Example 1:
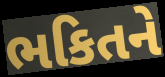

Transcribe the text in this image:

ભકિતને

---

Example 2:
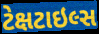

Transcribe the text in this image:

ટેક્ષટાઇલ્સ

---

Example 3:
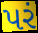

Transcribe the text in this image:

પરં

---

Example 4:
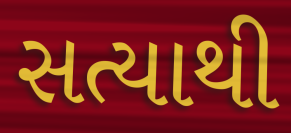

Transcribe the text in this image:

સત્યાથી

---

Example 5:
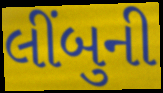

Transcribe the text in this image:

લીંબુની